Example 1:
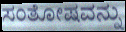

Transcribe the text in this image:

ಸಂತೋಷವನ್ನು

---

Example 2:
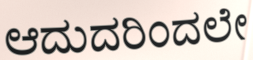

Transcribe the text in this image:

ಆದುದರಿಂದಲೇ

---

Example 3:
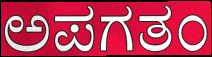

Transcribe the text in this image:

ಅಪಗತಂ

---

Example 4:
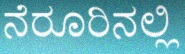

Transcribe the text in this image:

ನೆರೂರಿನಲ್ಲಿ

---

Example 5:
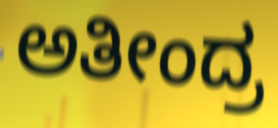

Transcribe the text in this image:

ಅತೀಂದ್ರ